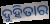
ଦୁହିତାର